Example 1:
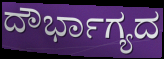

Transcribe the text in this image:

ದೌರ್ಭಾಗ್ಯದ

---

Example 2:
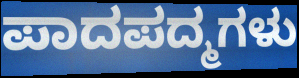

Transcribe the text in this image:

ಪಾದಪದ್ಮಗಳು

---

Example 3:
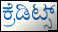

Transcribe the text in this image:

ಕ್ರೆಡಿಟ್ಸ್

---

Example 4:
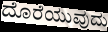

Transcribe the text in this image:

ದೊರೆಯುವುದು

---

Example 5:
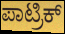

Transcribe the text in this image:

ಪಾಟ್ರಿಕ್